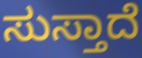
ಸುಸ್ತಾದೆ